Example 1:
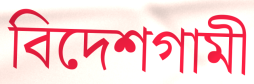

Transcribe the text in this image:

বিদেশগামী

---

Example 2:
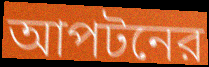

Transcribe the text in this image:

আপটনের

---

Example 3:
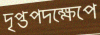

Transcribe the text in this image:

দৃপ্তপদক্ষেপে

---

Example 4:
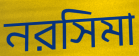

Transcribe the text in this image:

নরসিমা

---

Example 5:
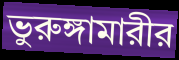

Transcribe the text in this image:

ভুরুঙ্গামারীর